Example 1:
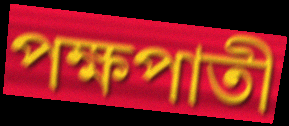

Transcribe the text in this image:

পক্ষপাতী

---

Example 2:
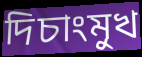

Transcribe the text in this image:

দিচাংমুখ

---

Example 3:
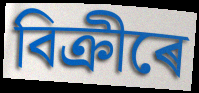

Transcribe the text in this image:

বিক্ৰীৰে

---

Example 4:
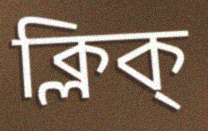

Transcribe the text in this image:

ক্লিক্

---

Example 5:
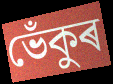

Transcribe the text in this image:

ভেঁকুৰ